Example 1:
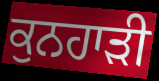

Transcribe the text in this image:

ਕੁਨਹਾੜੀ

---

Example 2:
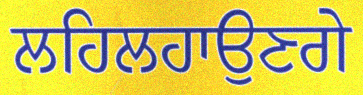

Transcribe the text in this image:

ਲਹਿਲਹਾਉਣਗੇ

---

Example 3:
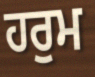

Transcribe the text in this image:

ਹਰੁਮ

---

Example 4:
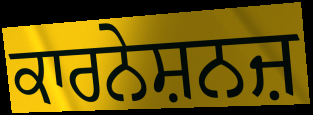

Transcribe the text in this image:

ਕਾਰਨੇਸ਼ਨਜ਼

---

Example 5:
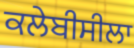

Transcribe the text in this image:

ਕਲੇਬੀਸੀਲਾ